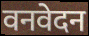
वनवेदन